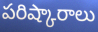
పరిష్కారాలు